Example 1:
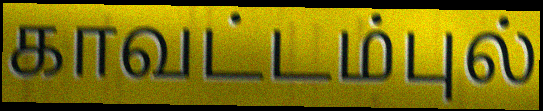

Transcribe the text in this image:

காவட்டம்புல்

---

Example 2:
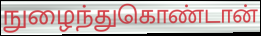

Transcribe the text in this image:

நுழைந்துகொண்டான்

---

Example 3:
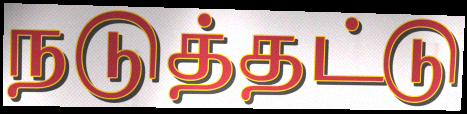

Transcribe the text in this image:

நடுத்தட்டு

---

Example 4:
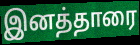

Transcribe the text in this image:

இனத்தாரை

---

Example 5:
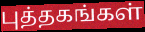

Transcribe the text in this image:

புத்தகங்கள்